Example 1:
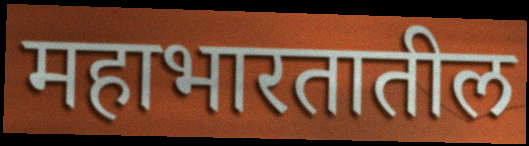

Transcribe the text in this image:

महाभारतातील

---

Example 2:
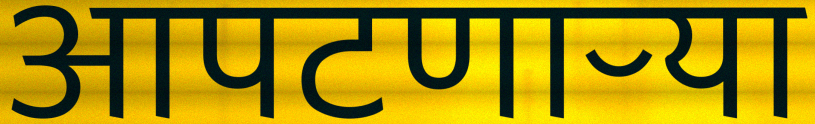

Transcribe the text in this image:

आपटणाऱ्या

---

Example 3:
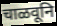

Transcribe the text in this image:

चाळवूनि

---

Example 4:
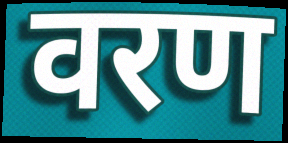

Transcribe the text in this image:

वरण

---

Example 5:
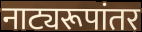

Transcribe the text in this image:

नाट्यरूपांतर